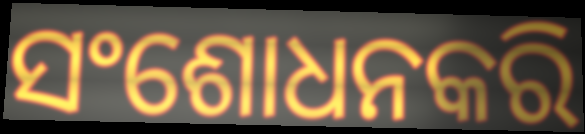
ସଂଶୋଧନକରି